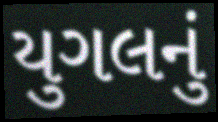
યુગલનું